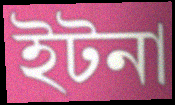
ইটনা